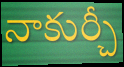
నాకుర్చీ